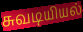
சுவடியியல்